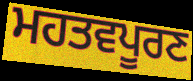
ਮਹਤਵਪੂਰਣ